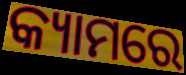
କ୍ୟାମରେ